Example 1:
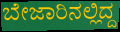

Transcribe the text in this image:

ಬೇಜಾರಿನಲ್ಲಿದ್ದ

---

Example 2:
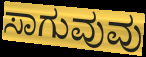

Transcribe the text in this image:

ಸಾಗುವುವು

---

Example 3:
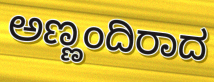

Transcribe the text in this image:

ಅಣ್ಣಂದಿರಾದ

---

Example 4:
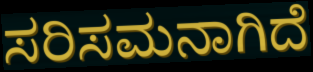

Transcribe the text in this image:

ಸರಿಸಮನಾಗಿದೆ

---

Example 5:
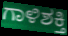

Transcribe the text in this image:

ಗಾಳಿಶಕ್ತಿ